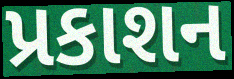
પ્રકાશન